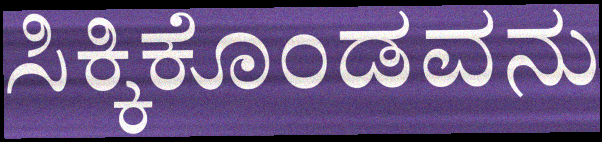
ಸಿಕ್ಕಿಕೊಂಡವನು